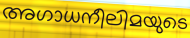
അഗാധനീലിമയുടെ